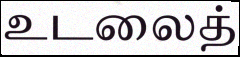
உடலைத்